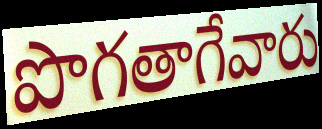
పొగతాగేవారు